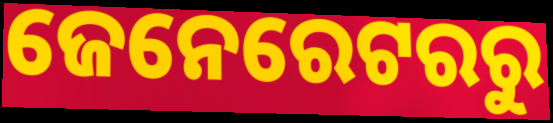
ଜେନେରେଟରରୁ